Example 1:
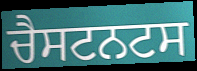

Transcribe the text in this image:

ਚੈਸਟਨਟਸ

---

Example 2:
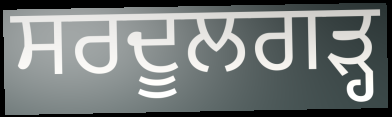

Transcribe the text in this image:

ਸਰਦੂਲਗੜ੍ਹ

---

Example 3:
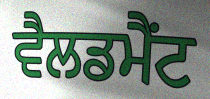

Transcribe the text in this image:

ਵੈਲਡਮੈਂਟ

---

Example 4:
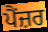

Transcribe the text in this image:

ਪੈਂਜ਼ਰ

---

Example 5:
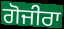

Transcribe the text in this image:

ਗੋਜੀਰਾ